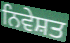
ਨਿਵੇਸ਼ਤ